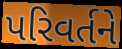
પરિવર્તને